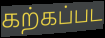
கற்கப்பட